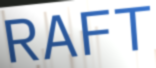
RAFT